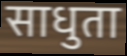
साधुता